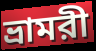
ভ্রামরী